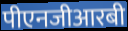
पीएनजीआरबी